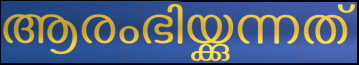
ആരംഭിയ്ക്കുന്നത്